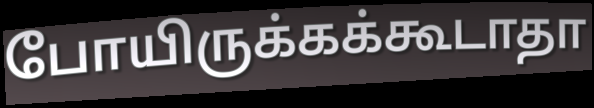
போயிருக்கக்கூடாதா